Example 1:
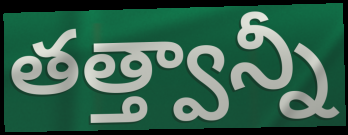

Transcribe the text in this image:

తత్త్వాన్నీ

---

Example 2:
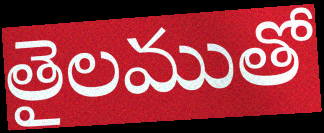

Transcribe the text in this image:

తైలముతో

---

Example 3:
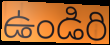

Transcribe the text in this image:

ఉండిరి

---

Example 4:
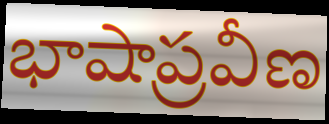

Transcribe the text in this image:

భాషాప్రవీణ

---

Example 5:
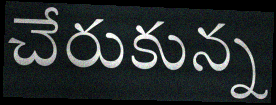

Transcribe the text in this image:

చేరుకున్న